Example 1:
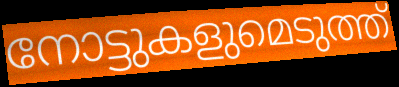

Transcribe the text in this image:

നോട്ടുകളുമെടുത്ത്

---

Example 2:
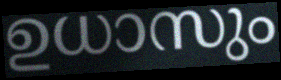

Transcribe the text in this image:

ഉധാസും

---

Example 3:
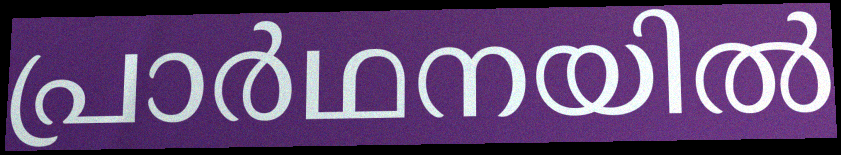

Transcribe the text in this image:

പ്രാർഥനയിൽ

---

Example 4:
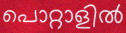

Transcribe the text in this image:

പൊറ്റാളിൽ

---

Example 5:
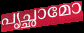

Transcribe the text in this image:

പൃച്ഛാമോ